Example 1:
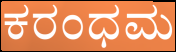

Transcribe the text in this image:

ಕರಂಧಮ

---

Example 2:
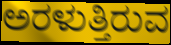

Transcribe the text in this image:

ಅರಳುತ್ತಿರುವ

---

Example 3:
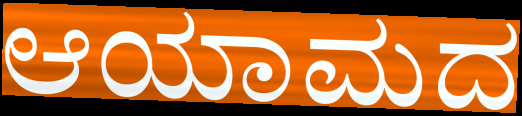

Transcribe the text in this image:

ಆಯಾಮದ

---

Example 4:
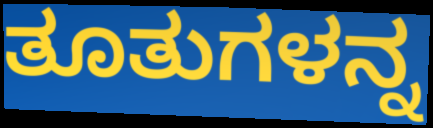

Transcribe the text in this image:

ತೂತುಗಳನ್ನ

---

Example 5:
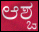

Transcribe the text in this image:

ಆಶ್ಚ